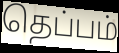
தெப்பம்